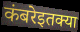
कंबरेइतक्या